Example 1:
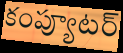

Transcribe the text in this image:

కంప్యూటర్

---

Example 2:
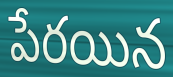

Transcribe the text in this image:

పేరయిన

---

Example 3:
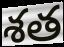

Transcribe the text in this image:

శత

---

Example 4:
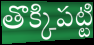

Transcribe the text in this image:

తొక్కిపట్టి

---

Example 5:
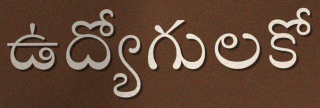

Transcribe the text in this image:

ఉద్యోగులకో